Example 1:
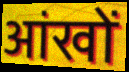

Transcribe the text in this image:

आंखों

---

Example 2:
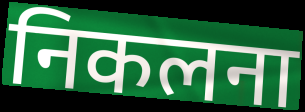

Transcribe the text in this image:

निकलना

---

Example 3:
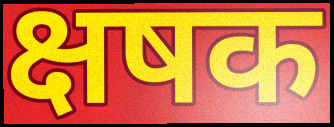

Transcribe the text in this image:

क्षषक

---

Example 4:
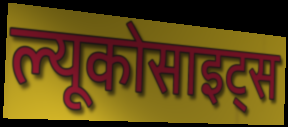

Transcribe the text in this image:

ल्यूकोसाइट्स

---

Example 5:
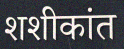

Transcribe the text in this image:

शशीकांत